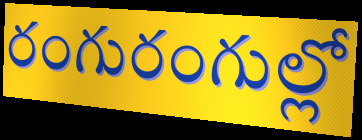
రంగురంగుల్లో